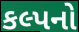
કલ્પનો